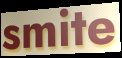
smite